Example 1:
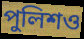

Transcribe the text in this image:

পুলিশও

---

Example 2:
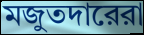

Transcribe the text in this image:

মজুতদারেরা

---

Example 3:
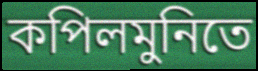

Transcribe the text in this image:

কপিলমুনিতে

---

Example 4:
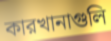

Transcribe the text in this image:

কারখানাগুলি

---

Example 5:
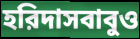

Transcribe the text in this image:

হরিদাসবাবুও